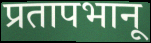
प्रतापभानू